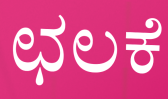
ಛಲಕೆ